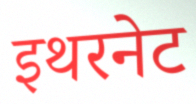
इथरनेट